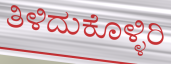
ತಿಳಿದುಕೊಳ್ಳಿರಿ